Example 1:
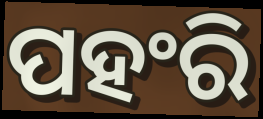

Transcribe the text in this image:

ପହଂରି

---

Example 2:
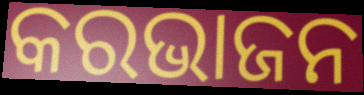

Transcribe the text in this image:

କରଭାଜନ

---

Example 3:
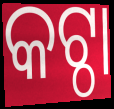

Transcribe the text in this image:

କଟ୍ଠା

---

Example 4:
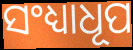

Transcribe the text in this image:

ସଂଧ୍ୟାଧୂପ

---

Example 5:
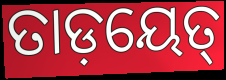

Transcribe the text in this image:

ତାଡ଼ୟେତ୍